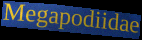
Megapodiidae